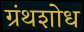
ग्रंथशोध